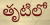
తృటిలో